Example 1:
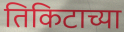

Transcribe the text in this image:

तिकिटाच्या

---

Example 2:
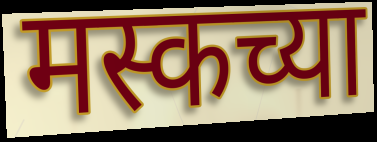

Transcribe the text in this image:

मस्कच्या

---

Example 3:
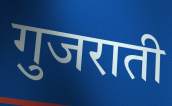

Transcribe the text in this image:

गुजराती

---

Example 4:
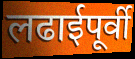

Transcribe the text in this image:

लढाईपूर्वी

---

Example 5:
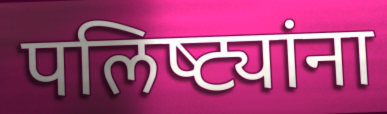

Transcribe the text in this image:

पलिष्ट्यांना